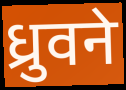
ध्रुवने